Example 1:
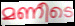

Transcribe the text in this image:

മണീടെ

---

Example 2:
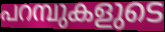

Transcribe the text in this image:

പറമ്പുകളുടെ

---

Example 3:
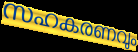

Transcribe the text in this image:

സഹകരണവും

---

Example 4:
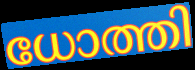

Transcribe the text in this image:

ധോത്തി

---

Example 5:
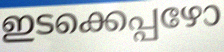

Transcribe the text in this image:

ഇടക്കെപ്പഴോ